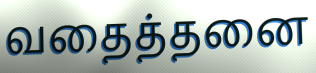
வதைத்தனை